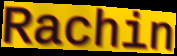
Rachin